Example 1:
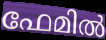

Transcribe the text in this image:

ഫേമിൽ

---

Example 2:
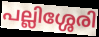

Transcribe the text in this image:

പല്ലിശ്ശേരി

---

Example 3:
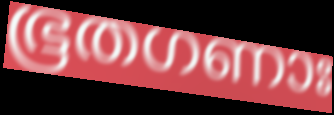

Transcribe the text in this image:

ഭൂതഗണാഃ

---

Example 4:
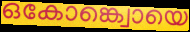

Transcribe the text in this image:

ഒകോങ്ക്വൊയെ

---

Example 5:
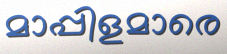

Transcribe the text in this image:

മാപ്പിളമാരെ